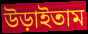
উড়াইতাম